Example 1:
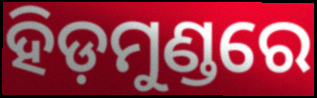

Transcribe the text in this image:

ହିଡ଼ମୁଣ୍ଡରେ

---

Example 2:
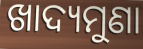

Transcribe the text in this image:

ଖାଦ୍ୟମୁଣା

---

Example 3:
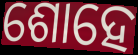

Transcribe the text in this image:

ଶୋହେ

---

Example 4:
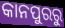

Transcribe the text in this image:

କାନପୁରରୁ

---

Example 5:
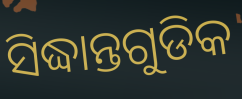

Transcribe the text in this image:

ସିଦ୍ଧାନ୍ତଗୁଡିକ